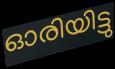
ഓരിയിട്ടു